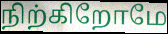
நிற்கிறோமே